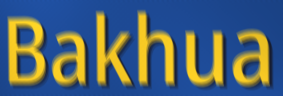
Bakhua